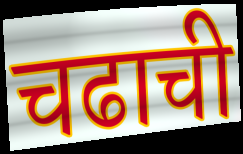
चढाची